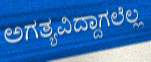
ಅಗತ್ಯವಿದ್ದಾಗಲೆಲ್ಲ